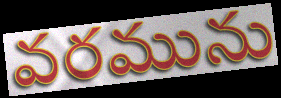
వరమును